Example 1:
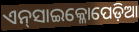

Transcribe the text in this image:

ଏନ୍‌ସାଇକ୍ଳୋପେଡ଼ିଆ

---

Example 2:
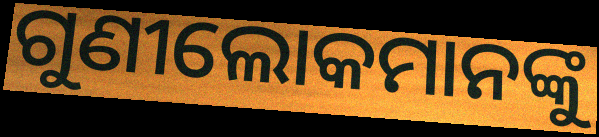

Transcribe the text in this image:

ଗୁଣୀଲୋକମାନଙ୍କୁ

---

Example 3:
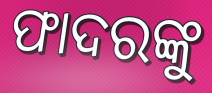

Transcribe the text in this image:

ଫାଦରଙ୍କୁ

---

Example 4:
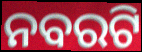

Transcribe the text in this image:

ନବରଟି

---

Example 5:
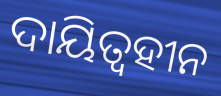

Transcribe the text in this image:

ଦାୟିତ୍ଵହୀନ